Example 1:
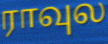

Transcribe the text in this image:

ராவுல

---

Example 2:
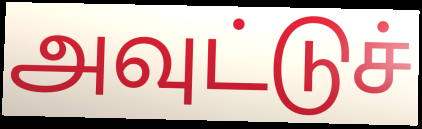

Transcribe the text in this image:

அவுட்டுச்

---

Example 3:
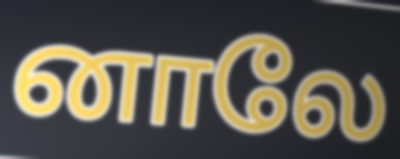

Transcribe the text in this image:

னாலே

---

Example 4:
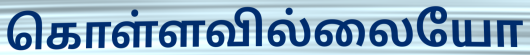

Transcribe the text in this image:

கொள்ளவில்லையோ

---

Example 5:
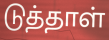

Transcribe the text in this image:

டுத்தாள்